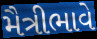
મૈત્રીભાવે